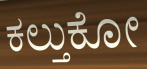
ಕಲ್ತುಕೋ